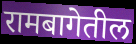
रामबागेतील